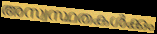
അസ്വസ്ഥതകൾക്കും